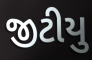
જીટીયુ